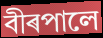
বীৰপালে